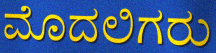
ಮೊದಲಿಗರು